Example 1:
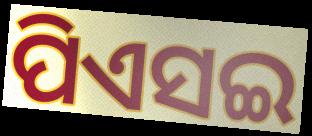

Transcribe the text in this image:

ପିଏସଇ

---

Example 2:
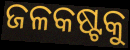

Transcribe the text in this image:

ଜଳକଷ୍ଟକୁ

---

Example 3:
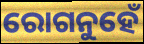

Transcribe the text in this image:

ରୋଗନୁହେଁ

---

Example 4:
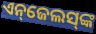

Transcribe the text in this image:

ଏନ୍‌ଜେଲସ୍‌ଙ୍କ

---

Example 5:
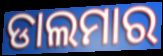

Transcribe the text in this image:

ଡାଲମାର